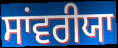
ਸਾਂਵਰੀਯਾ